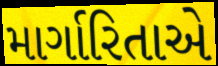
માર્ગારિતાએ